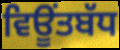
ਵਿਊਂਤਬੱਧ